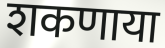
शकणाया